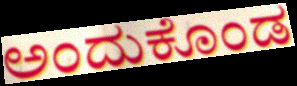
ಅಂದುಕೊಂಡ